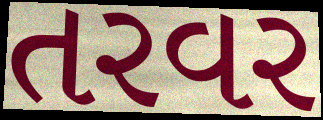
તરવર